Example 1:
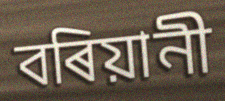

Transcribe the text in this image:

বৰিয়ানী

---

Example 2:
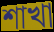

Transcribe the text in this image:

শাখা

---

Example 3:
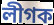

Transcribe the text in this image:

লীগক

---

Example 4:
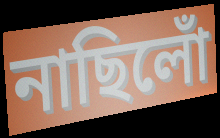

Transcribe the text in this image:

নাছিলোঁ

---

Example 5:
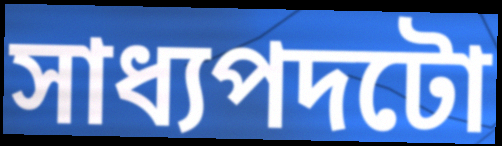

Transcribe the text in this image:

সাধ্যপদটো